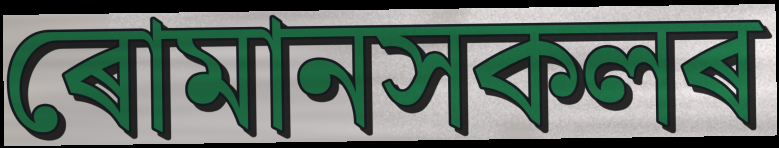
ৰোমানসকলৰ